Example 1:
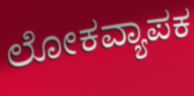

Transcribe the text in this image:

ಲೋಕವ್ಯಾಪಕ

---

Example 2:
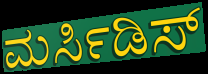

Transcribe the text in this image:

ಮರ್ಸಿಡಿಸ್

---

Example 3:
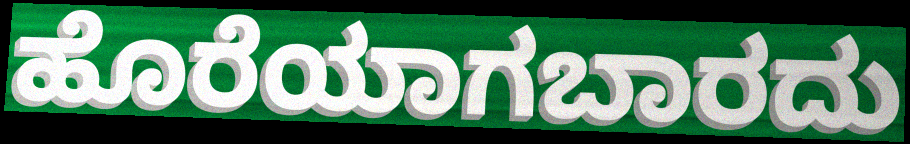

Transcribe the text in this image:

ಹೊರೆಯಾಗಬಾರದು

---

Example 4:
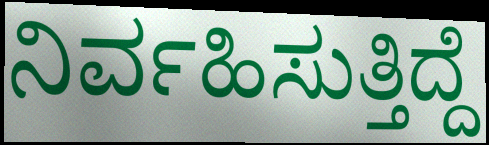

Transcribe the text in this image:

ನಿರ್ವಹಿಸುತ್ತಿದ್ದೆ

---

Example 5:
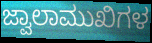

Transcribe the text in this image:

ಜ್ವಾಲಾಮುಖಿಗಳ